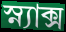
স্ন্যাক্স